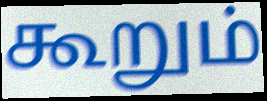
கூறும்